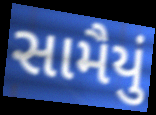
સામૈયું